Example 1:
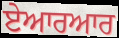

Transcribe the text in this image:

ਏਆਰਆਰ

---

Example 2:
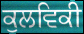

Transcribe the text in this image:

ਕੁਲਵਿਕੀ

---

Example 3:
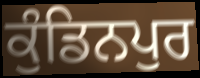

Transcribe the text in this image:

ਕੁੰਡਿਨਪੁਰ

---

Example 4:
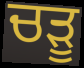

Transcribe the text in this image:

ਚੜੂ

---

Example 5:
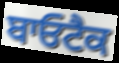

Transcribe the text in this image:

ਬਾਓਟੈਕ